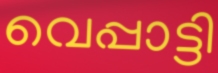
വെപ്പാട്ടി